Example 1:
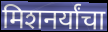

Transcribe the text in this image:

मिशनर्यांचा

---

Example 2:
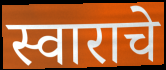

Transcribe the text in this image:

स्वाराचे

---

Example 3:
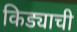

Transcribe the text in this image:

किड्याची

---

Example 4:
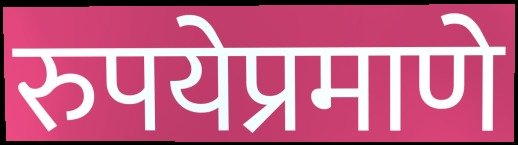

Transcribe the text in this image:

रुपयेप्रमाणे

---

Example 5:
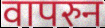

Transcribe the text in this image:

वापरुन